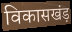
विकासखंड़